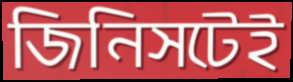
জিনিসটেই